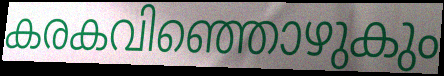
കരകവിഞ്ഞൊഴുകും